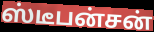
ஸ்டீபன்சன்